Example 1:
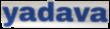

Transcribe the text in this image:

yadava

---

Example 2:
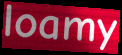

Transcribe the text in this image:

loamy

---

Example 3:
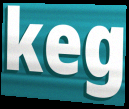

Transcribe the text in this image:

keg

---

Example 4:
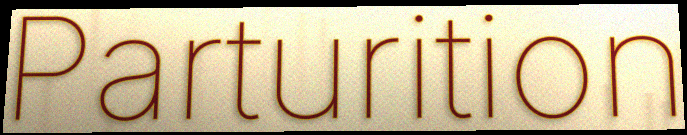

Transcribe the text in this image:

Parturition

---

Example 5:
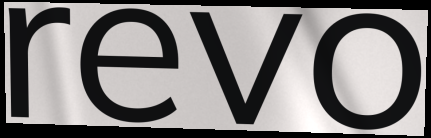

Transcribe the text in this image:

revo